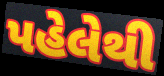
પહેલેથી